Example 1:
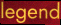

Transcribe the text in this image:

legend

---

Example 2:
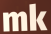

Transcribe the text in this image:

mk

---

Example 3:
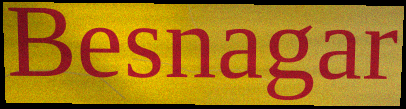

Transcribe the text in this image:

Besnagar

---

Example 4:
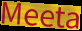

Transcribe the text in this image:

Meeta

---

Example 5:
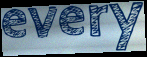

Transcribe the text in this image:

every